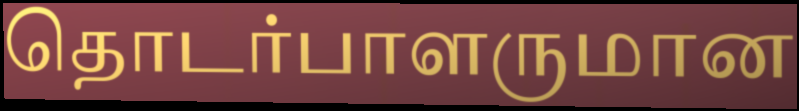
தொடர்பாளருமான